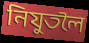
নিযুতলৈ